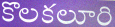
కొలకలూరి